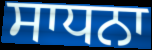
ਸਾਧਨਾ